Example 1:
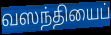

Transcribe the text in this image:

வஸந்தியைப்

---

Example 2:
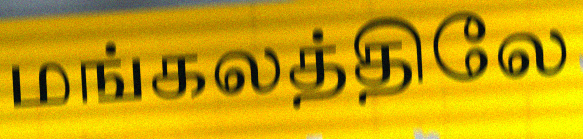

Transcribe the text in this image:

மங்கலத்திலே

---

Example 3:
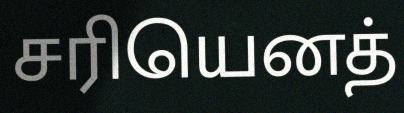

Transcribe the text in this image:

சரியெனத்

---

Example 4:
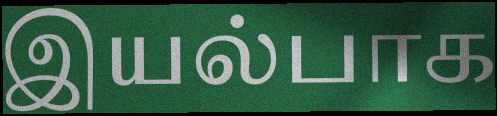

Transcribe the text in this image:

இயல்பாக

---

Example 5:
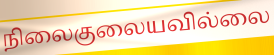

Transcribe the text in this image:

நிலைகுலையவில்லை